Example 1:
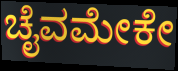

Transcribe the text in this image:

ಚೈವಮೇಕೇ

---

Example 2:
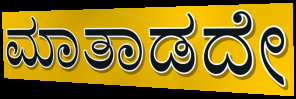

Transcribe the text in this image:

ಮಾತಾಡದೇ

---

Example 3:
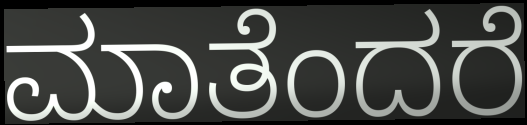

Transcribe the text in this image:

ಮಾತೆಂದರೆ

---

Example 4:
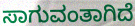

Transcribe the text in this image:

ಸಾಗುವಂತಾಗಿದೆ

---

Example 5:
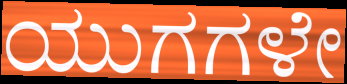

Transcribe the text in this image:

ಯುಗಗಳೇ